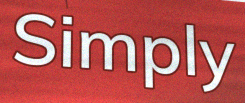
Simply